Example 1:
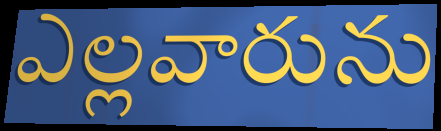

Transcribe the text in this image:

ఎల్లవారును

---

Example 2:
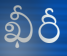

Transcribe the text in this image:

ఖీరీ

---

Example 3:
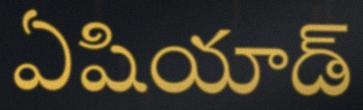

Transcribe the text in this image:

ఏషియాడ్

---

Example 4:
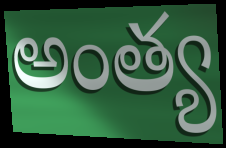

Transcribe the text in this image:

అంత్య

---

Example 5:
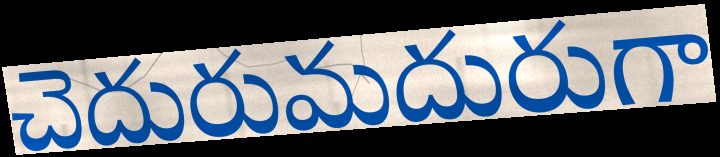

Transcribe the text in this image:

చెదురుమదురుగా